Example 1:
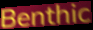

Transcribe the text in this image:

Benthic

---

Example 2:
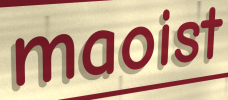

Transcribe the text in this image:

maoist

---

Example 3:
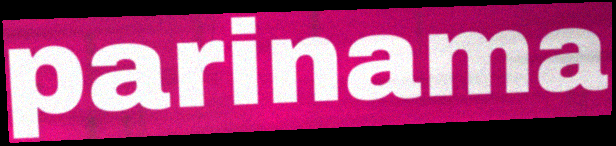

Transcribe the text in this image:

parinama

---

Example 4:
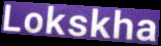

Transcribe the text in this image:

Lokskha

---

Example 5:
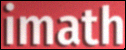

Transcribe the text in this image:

imath